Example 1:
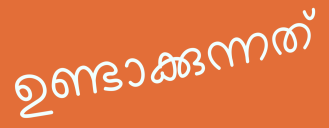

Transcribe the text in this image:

ഉണ്ടാക്കുന്നത്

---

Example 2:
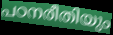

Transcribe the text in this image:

പഠനരീതിയും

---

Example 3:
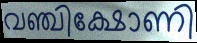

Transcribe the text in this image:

വഞ്ചിക്ഷോണി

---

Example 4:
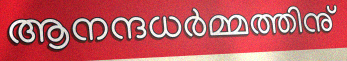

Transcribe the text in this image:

ആനന്ദധർമ്മത്തിനു്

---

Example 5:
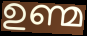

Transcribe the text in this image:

ഉണ്മ